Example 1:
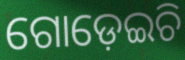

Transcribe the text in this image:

ଗୋଡ଼େଇଚି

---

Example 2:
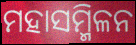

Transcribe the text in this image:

ମହାସମ୍ମିଳନ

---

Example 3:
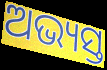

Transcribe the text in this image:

ଅଭ୍ୟସ୍ତ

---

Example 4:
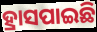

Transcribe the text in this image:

ହ୍ରାସପାଇଛି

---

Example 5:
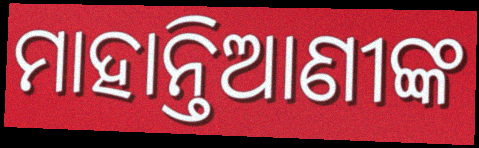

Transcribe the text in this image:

ମାହାନ୍ତିଆଣୀଙ୍କ